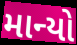
માન્યો